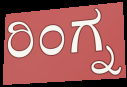
ರಿಂಗ್ನ